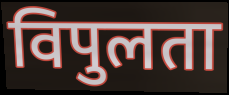
विपुलता